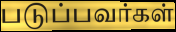
படுப்பவர்கள்